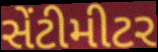
સેંટીમીટર